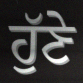
ਹੁੱਣੇ